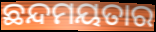
ଛନ୍ଦମୟତାର